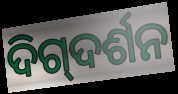
ଦିଗ୍‍ଦର୍ଶନ